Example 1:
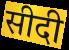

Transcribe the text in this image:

सीदी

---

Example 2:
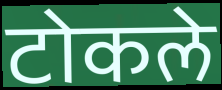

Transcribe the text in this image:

टोकले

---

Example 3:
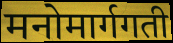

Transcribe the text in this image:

मनोमार्गगती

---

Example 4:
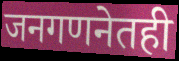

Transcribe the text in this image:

जनगणनेतही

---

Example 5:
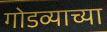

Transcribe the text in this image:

गोडव्याच्या